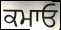
ਕਮਾਓ